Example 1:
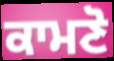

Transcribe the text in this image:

ਕਾਮਣੋ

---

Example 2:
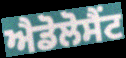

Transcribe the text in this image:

ਐਡੋਲੋਸੈਂਟ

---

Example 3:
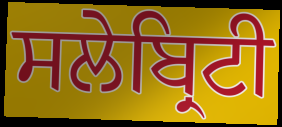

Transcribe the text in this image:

ਸਲੇਬ੍ਰਿਟੀ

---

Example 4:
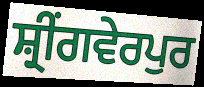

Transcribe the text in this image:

ਸ਼੍ਰੀਂਗਵੇਰਪੁਰ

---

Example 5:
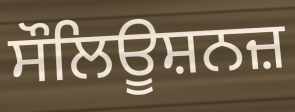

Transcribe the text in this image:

ਸੌਲਿਊਸ਼ਨਜ਼